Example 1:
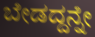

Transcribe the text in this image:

ಬೇಡದ್ದನ್ನೇ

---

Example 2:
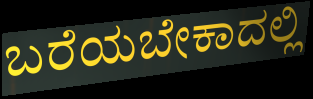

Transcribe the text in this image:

ಬರೆಯಬೇಕಾದಲ್ಲಿ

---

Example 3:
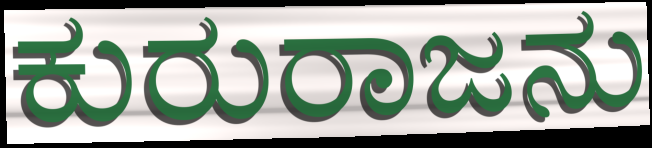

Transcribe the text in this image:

ಕುರುರಾಜನು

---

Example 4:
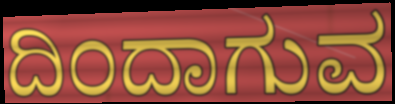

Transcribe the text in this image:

ದಿಂದಾಗುವ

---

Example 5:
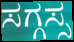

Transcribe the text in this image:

ಸಗ್ಗಸ್ಸ